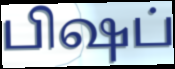
பிஷப்